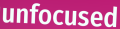
unfocused